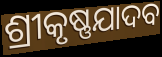
ଶ୍ରୀକୃଷ୍ଣଯାଦବ